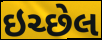
ઇચ્છેલ